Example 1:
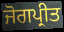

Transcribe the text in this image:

ਜੋਗਪ੍ਰੀਤ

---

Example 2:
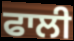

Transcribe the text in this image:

ਫਾਲੀ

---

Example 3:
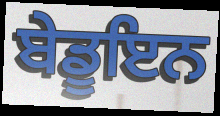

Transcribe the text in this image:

ਬੇਡੂਇਨ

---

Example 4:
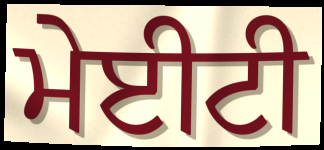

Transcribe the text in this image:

ਮੇਈਟੀ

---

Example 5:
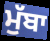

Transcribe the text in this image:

ਮੁੱਬਾ